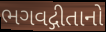
ભગવદ્ગીતાનો